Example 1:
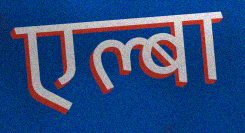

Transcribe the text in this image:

एल्बा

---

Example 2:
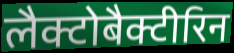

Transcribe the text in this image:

लैक्टोबैक्टीरिन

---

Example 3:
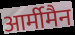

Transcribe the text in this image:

आर्मीमैन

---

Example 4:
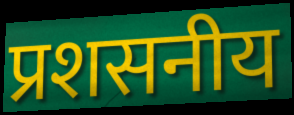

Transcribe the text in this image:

प्रशसनीय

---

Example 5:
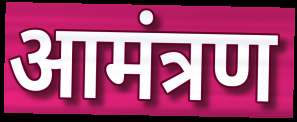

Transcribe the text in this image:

आमंत्रण